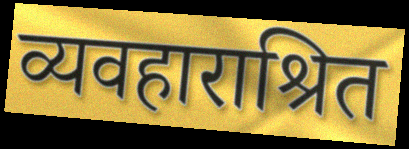
व्यवहाराश्रित